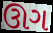
ઊગ